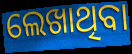
ଲେଖାଥିବା